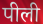
पीली